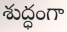
శుద్ధంగా